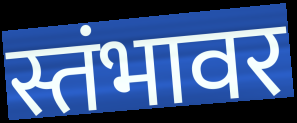
स्तंभावर